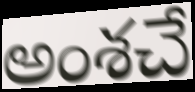
అంశచే